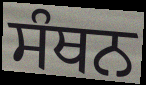
ਸੰਥਨ